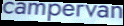
campervan